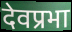
देवप्रभा